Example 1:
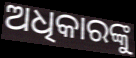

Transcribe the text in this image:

ଅଧିକାରଙ୍କୁ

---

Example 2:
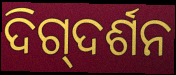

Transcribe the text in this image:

ଦିଗ୍‍ଦର୍ଶନ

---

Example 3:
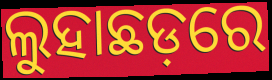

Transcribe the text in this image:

ଲୁହାଛଡ଼ରେ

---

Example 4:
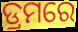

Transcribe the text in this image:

ଡ୍ରମରେ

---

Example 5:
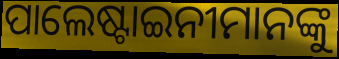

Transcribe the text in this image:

ପାଲେଷ୍ଟାଇନୀମାନଙ୍କୁ